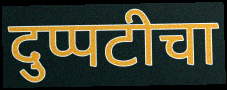
दुप्पटीचा